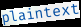
plaintext